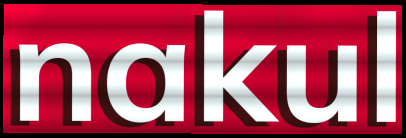
nakul